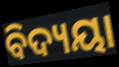
ବିଦ୍ୟୟା